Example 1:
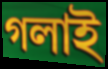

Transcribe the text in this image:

গলাই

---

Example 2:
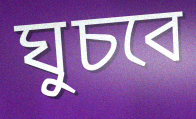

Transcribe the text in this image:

ঘুচবে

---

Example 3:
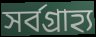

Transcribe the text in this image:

সর্বগ্রাহ্য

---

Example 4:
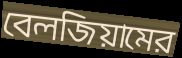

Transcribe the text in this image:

বেলজিয়ামের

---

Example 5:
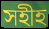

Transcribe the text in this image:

সহীহ